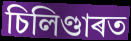
চিলিণ্ডাৰত